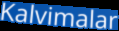
Kalvimalar